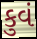
કુવં